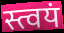
स्त्वयं